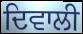
ਦਿਵਾਲੀ